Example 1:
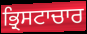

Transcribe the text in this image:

ਭ੍ਰਿਸਟਾਚਾਰ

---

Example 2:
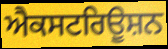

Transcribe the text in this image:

ਐਕਸਟਰਿਊਸ਼ਨ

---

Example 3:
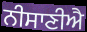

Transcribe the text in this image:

ਨੀਸਾਣੀਐ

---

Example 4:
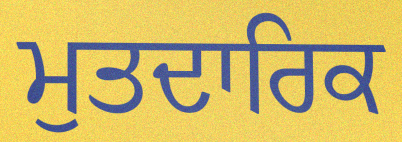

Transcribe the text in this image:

ਮੁਤਦਾਰਿਕ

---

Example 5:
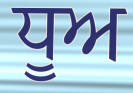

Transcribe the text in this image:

ਧੂਅ